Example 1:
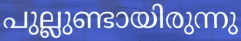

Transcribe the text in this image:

പുല്ലുണ്ടായിരുന്നു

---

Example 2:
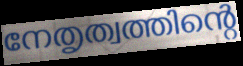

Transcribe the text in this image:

നേതൃത്വത്തിന്റെ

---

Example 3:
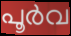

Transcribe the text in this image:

പൂർവ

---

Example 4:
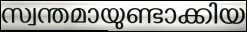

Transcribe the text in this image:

സ്വന്തമായുണ്ടാക്കിയ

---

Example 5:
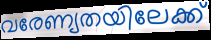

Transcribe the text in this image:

വരേണ്യതയിലേക്ക്